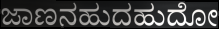
ಜಾಣನಹುದಹುದೋ